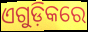
ଏଗୁଡ଼ିକରେ